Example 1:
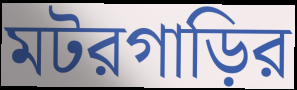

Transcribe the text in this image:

মটরগাড়ির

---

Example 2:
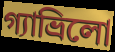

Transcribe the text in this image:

গ্যাভ্রিলো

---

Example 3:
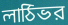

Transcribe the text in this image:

লাঠিভর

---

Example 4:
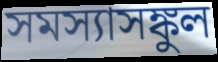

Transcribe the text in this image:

সমস্যাসঙ্কুল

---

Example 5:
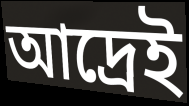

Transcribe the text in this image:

আদ্রেই